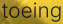
toeing